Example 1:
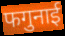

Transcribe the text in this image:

फगुनाई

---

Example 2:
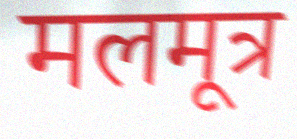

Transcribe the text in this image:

मलमूत्र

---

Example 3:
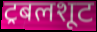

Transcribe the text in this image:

ट्रबलशूट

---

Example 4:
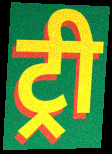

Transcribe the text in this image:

ट्री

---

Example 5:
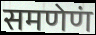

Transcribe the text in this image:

समणेणं